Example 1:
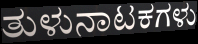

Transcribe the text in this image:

ತುಳುನಾಟಕಗಳು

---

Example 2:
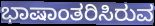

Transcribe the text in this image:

ಭಾಷಾಂತರಿಸಿರುವ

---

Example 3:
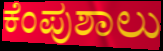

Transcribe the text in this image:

ಕೆಂಪುಶಾಲು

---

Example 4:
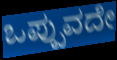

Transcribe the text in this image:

ಒಪ್ಪುವದೇ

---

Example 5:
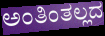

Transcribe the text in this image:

ಅಂತಿಂತಲ್ಲದ